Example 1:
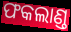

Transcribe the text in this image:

ଫକଲାଣ୍ଡ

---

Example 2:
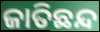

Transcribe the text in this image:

ଜାତିଛନ୍ଦ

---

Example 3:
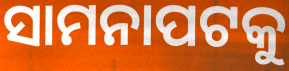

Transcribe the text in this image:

ସାମନାପଟକୁ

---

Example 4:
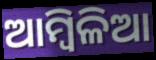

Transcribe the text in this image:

ଆମ୍ୱିଳିଆ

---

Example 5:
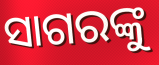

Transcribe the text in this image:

ସାଗରଙ୍କୁ